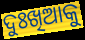
ଦୁଃଖିଆକୁ